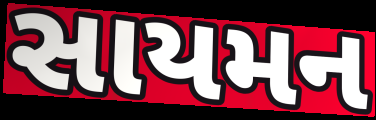
સાયમન